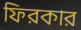
ফিরকার